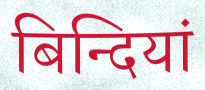
बिन्दियां